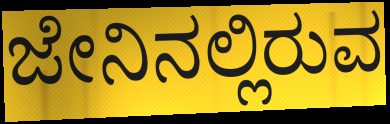
ಜೇನಿನಲ್ಲಿರುವ